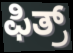
ಫಿತ್ರ್